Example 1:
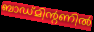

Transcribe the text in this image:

ബാഡ്മിന്റണിൽ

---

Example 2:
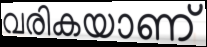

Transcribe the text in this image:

വരികയാണ്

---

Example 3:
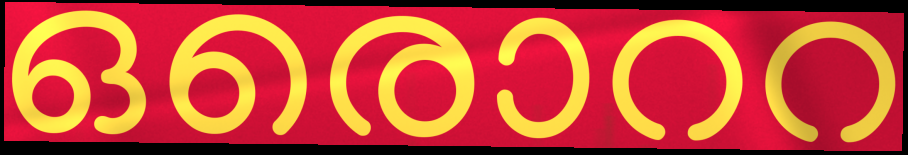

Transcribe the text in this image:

ഒരൊററ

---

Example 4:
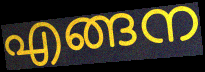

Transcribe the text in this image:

എങ്ങന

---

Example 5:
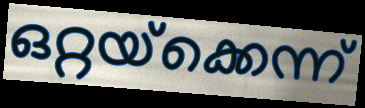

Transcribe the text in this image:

ഒറ്റയ്‌ക്കെന്ന്